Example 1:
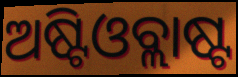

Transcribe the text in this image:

ଅଷ୍ଟିଓବ୍ଲାଷ୍ଟ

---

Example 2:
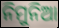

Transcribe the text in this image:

ନିମୁନିଆ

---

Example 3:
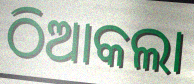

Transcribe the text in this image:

ଠିଆକଲା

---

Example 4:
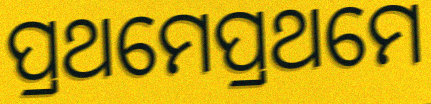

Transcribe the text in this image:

ପ୍ରଥମେପ୍ରଥମେ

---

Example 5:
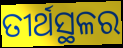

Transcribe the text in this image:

ତୀର୍ଥସ୍ଥଳର